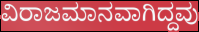
ವಿರಾಜಮಾನವಾಗಿದ್ದವು